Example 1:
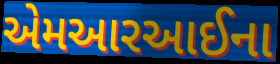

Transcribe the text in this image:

એમઆરઆઈના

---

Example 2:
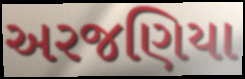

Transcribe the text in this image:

અરજણિયા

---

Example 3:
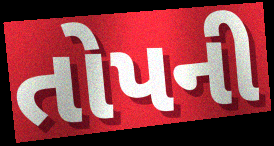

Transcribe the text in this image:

તોપની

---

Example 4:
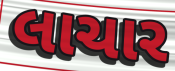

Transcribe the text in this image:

લાચાર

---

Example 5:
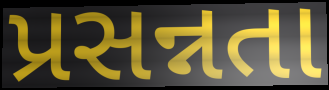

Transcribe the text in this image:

પ્રસન્નતા